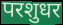
परशुधर